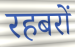
रहबरों